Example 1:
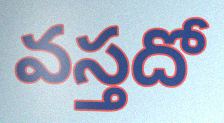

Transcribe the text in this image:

వస్తదో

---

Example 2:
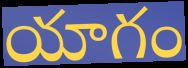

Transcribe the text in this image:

యాగం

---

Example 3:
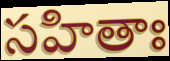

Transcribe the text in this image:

సహితాః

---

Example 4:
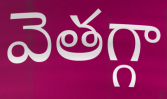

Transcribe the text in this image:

వెతగ్గా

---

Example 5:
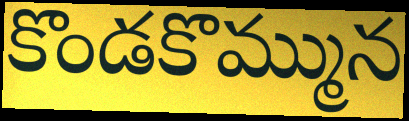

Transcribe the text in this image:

కొండకొమ్మున